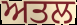
ਅਤਲ